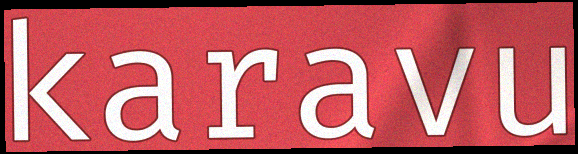
karavu